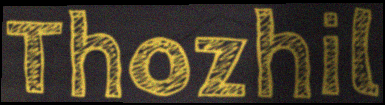
Thozhil